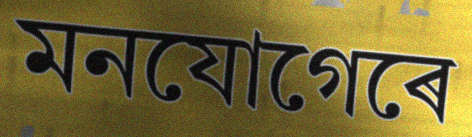
মনযোগেৰে